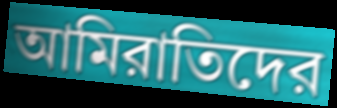
আমিরাতিদের